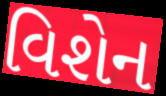
વિશેન